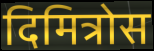
दिमित्रोस